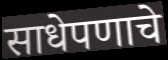
साधेपणाचे